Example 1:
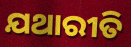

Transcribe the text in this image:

ଯଥାରୀତି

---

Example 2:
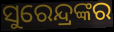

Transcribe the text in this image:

ସୁରେନ୍ଦ୍ରଙ୍କର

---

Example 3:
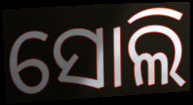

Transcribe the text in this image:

ସୋଲି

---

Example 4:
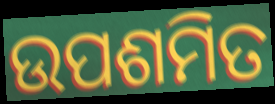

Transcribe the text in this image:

ଉପଶମିତ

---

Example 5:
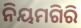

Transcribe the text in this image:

ନିୟମଗିରି